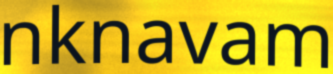
nknavam